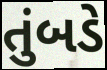
તુંબડે